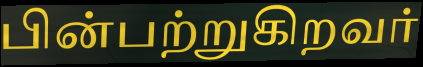
பின்பற்றுகிறவர்